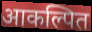
आकल्पित